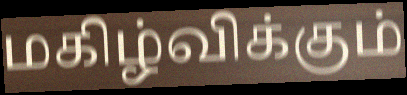
மகிழ்விக்கும்